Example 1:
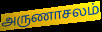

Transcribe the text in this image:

அருணாசலம்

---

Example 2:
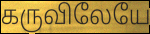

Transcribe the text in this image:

கருவிலேயே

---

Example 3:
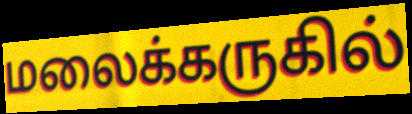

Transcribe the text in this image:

மலைக்கருகில்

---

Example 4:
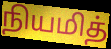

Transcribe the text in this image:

நியமித்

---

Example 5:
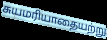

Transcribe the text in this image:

சுயமரியாதையற்று